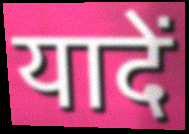
यादें